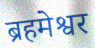
ब्रहमेश्वर